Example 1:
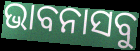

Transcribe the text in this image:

ଭାବନାସବୁ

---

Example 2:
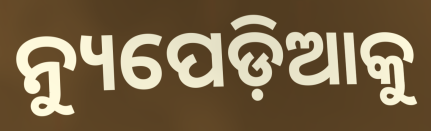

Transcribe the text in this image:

ନ୍ୟୁପେଡ଼ିଆକୁ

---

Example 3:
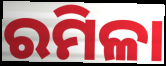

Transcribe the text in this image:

ରମିଳା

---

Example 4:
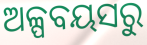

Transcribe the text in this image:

ଅଳ୍ପବୟସରୁ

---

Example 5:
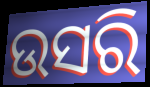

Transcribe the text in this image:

ଉସରି